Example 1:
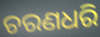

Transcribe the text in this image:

ଚରଣଧରି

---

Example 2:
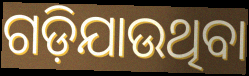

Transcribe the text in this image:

ଗଡ଼ିଯାଉଥିବା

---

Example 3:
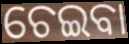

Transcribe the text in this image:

ଚେଇବା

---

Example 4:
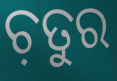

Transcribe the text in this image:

ଚ଼ତୁର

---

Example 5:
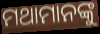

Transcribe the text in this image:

ମଥାମାନଙ୍କୁ